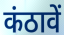
कंठावें